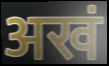
अखं